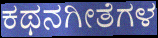
ಕಥನಗೀತೆಗಳ